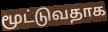
மூட்டுவதாக